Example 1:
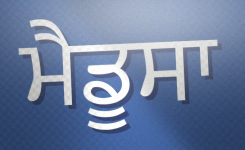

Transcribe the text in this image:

ਮੈਡੂਸਾ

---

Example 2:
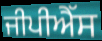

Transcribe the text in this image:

ਜੀਪੀਐੱਸ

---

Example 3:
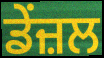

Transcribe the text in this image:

ਡੇਂਜ਼ਲ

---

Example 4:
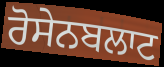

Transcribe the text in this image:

ਰੋਸੇਨਬਲਾਟ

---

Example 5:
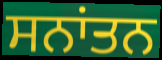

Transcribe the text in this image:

ਸਨਾਂਤਨ